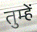
तुम्हें